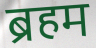
ब्रहम